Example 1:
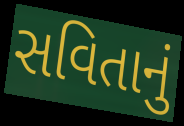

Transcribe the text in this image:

સવિતાનું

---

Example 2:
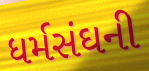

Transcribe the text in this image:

ધર્મસંઘની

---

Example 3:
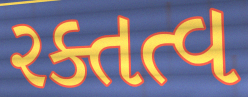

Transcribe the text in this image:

રક્તત્વ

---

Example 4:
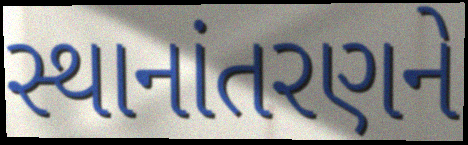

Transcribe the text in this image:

સ્થાનાંતરણને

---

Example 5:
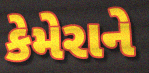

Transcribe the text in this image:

કેમેરાને